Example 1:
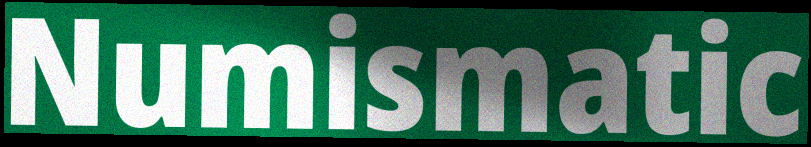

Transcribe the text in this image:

Numismatic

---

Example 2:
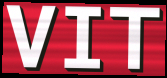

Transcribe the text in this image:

VIT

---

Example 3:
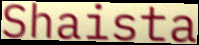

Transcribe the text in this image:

Shaista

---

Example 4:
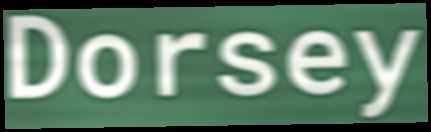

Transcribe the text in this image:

Dorsey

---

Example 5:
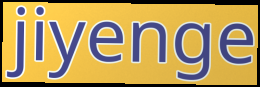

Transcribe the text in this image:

jiyenge